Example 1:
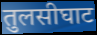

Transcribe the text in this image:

तुलसीघाट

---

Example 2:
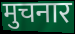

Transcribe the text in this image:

मुचनार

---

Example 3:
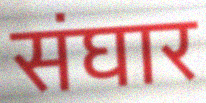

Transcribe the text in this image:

संघार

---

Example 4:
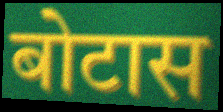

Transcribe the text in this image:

बोटास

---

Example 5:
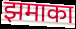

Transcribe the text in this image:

झमाका